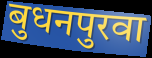
बुधनपुरवा